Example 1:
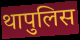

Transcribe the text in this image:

थापुलिस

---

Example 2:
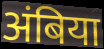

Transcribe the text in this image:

अंबिया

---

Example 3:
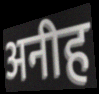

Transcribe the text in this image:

अनीह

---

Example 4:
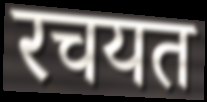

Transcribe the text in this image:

रचयत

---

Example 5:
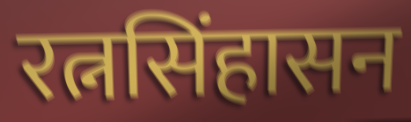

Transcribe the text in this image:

रत्नसिंहासन